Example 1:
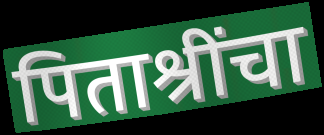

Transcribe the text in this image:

पिताश्रींचा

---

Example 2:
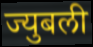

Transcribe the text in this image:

ज्युबली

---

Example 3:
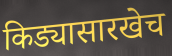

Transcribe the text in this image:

किड्यासारखेच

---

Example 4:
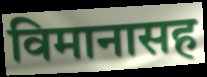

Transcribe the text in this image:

विमानासह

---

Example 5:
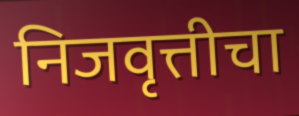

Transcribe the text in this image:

निजवृत्तीचा